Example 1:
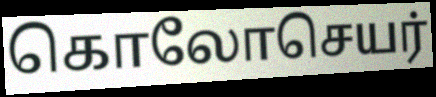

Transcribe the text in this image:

கொலோசெயர்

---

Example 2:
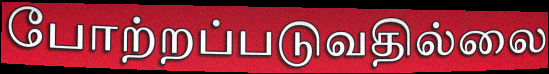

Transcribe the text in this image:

போற்றப்படுவதில்லை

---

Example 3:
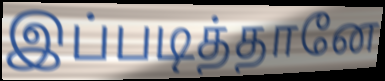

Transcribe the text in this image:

இப்படித்தானே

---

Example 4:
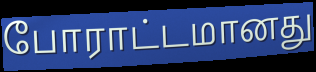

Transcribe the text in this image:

போராட்டமானது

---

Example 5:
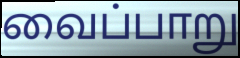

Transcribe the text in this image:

வைப்பாறு